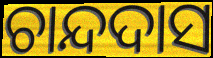
ଚାନ୍ଦଦାସ